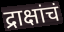
द्राक्षांचं